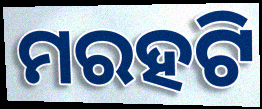
ମରହଟି